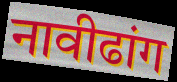
नावीढांग